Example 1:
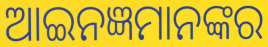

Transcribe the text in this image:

ଆଇନଜ୍ଞମାନଙ୍କର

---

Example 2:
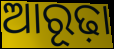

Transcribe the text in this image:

ଆରୂଢ଼ା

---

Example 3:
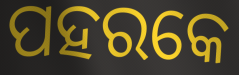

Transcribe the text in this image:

ପହରକେ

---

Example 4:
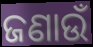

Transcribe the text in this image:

ଜଣାଉଁ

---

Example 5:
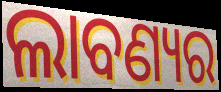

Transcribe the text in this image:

ଲାବଣ୍ୟର